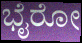
ಭೈರೋ